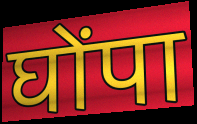
घोंपा